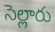
సెల్లారు